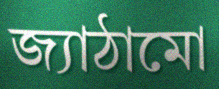
জ্যাঠামো